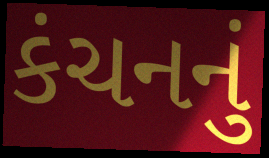
કંચનનું